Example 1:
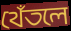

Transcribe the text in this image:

থেঁতলে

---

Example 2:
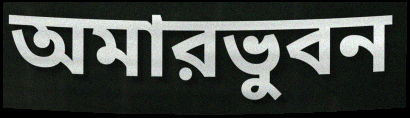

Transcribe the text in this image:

অমারভুবন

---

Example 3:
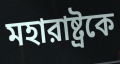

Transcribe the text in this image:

মহারাষ্ট্রকে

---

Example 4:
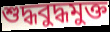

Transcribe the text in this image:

শুদ্ধবুদ্ধমুক্ত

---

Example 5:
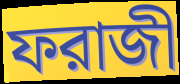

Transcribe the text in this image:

ফরাজী